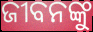
ଜୀବନଙ୍କୁ